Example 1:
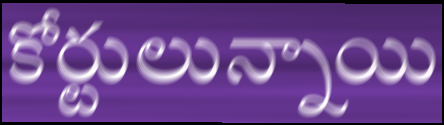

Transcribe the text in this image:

కోర్టులున్నాయి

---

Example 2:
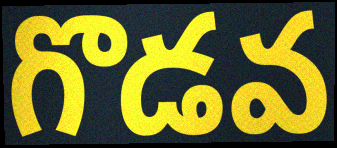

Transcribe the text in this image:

గొడవ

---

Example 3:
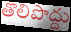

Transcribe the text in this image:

తొలిపొద్దు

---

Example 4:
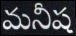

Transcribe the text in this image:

మనీష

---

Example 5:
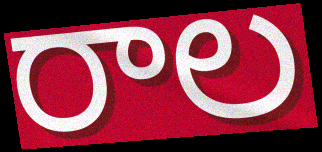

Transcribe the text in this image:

రాల